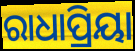
ରାଧାପ୍ରିୟା